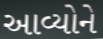
આવ્યોને